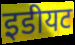
इडीयट